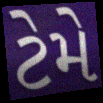
ટેમે